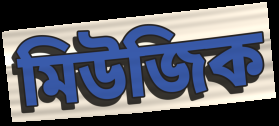
মিউজিক